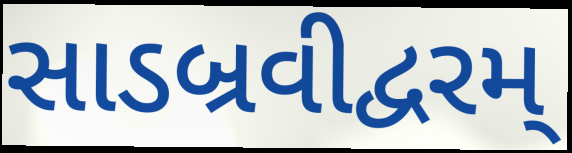
સાડબ્રવીદ્વરમ્